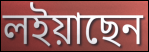
লইয়াছেন